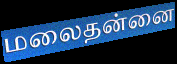
மலைதன்னை